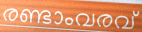
രണ്ടാംവരവ്